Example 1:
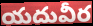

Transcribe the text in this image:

యదువీర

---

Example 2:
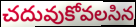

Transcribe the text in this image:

చదువుకోవలసిన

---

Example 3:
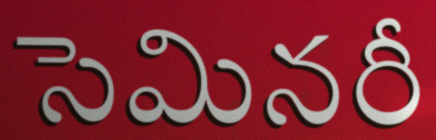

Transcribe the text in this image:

సెమినరీ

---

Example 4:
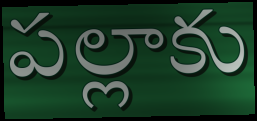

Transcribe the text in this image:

పల్లాకు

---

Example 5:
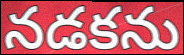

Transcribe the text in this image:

నడకను